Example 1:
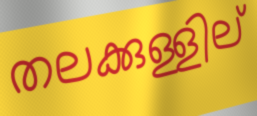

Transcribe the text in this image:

തലക്കുള്ളില്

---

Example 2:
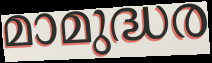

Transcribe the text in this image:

മാമുദ്ധര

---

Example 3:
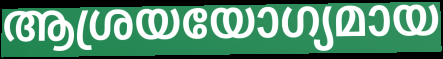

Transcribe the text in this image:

ആശ്രയയോഗ്യമായ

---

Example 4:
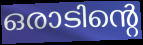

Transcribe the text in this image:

ഒരാടിന്റെ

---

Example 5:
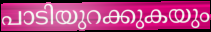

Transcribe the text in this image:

പാടിയുറക്കുകയും